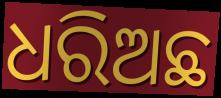
ଧରିଅଛ